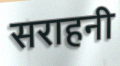
सराहनी